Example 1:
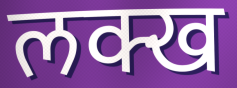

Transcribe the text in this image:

लक्ख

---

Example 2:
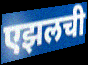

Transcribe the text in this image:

एझलची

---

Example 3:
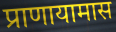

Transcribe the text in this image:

प्राणायामास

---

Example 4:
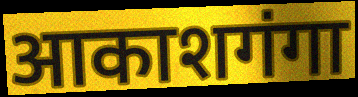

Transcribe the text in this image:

आकाशगंगा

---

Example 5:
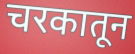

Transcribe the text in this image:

चरकातून